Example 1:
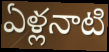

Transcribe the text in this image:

ఏళ్లనాటి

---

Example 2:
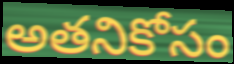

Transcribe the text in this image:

అతనికోసం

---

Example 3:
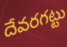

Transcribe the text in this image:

దేవరగట్టు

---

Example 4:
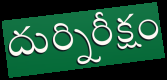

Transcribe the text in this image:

దుర్నిరీక్షం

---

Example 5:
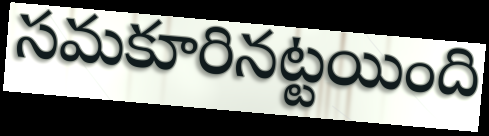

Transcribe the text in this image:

సమకూరినట్టయింది